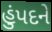
હુંપદને